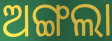
ଅଙ୍ଗଲା